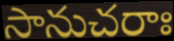
సానుచరాః